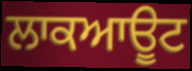
ਲਾਕਆਊਟ